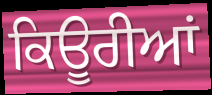
ਕਿਊਰੀਆਂ